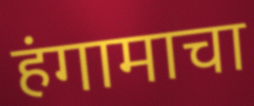
हंगामाचा